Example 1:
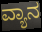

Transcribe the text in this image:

ವ್ಯಾನ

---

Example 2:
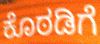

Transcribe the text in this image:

ಕೊಠಡಿಗೆ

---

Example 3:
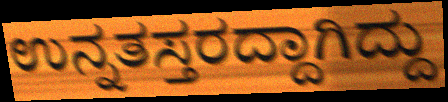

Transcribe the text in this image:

ಉನ್ನತಸ್ತರದ್ದಾಗಿದ್ದು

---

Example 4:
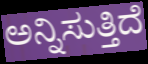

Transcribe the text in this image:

ಅನ್ನಿಸುತ್ತಿದೆ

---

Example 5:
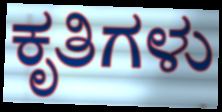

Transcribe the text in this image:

ಕೃತಿಗಳು